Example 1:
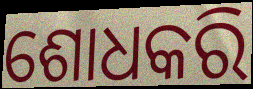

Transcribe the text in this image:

ଶୋଧକରି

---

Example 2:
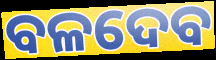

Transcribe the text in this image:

ବଳଦେବ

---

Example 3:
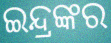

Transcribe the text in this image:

ଇନ୍ଦ୍ରଙ୍କର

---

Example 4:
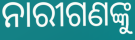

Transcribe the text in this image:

ନାରୀଗଣଙ୍କୁ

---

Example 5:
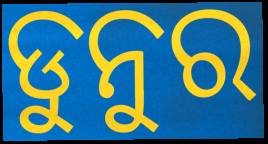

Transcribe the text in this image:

ଡୁନୁର